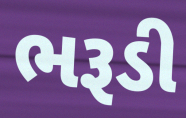
ભરૂડી